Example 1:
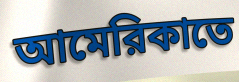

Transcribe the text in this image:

আমেরিকাতে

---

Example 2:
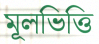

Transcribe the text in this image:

মূলভিত্তি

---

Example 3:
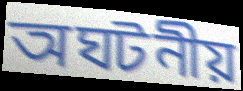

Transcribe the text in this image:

অঘটনীয়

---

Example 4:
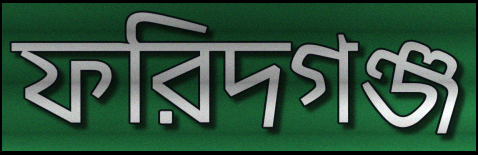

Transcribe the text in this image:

ফরিদগঞ্জ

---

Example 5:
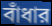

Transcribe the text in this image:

বাঁধার